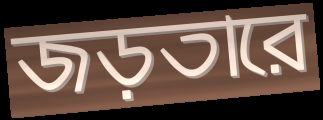
জড়তারে